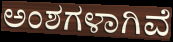
ಅಂಶಗಳಾಗಿವೆ